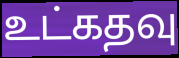
உட்கதவு